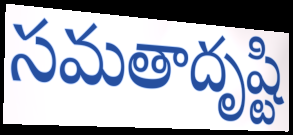
సమతాదృష్టి